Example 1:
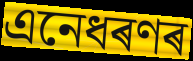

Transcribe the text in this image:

এনেধৰণৰ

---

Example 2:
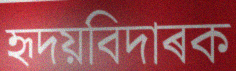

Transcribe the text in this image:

হৃদয়বিদাৰক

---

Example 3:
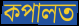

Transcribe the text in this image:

কপালত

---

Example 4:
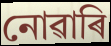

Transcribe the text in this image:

নোৱাৰি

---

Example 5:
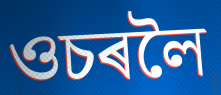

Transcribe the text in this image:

ওচৰলৈ